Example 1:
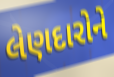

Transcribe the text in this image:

લેણદારોને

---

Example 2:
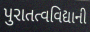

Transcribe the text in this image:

પુરાતત્વવિદ્યાની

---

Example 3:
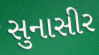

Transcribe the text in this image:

સુનાસીર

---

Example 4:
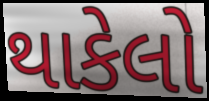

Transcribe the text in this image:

થાકેલો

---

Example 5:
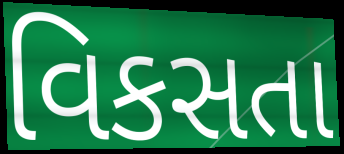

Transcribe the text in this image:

વિકસતા